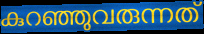
കുറഞ്ഞുവരുന്നത്